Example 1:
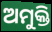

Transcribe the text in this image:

ଅମୁକ୍ତି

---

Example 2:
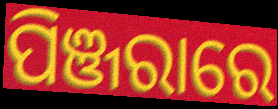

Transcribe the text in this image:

ପିଞ୍ଜରାରେ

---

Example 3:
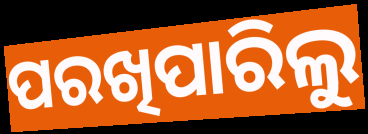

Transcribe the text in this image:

ପରଖିପାରିଲୁ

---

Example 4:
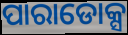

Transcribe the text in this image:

ପାରାଡୋକ୍ସ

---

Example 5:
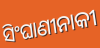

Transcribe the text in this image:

ସିଂଘାଣୀନାକୀ